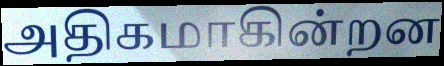
அதிகமாகின்றன